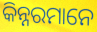
କିନ୍ନରମାନେ